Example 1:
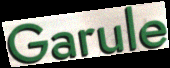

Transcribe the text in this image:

Garule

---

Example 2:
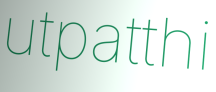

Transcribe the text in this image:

utpatthi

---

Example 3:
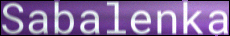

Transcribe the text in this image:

Sabalenka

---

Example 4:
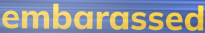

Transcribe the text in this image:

embarassed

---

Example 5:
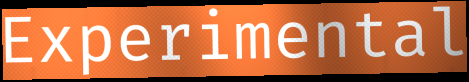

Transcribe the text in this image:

Experimental